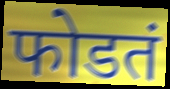
फोडतं